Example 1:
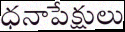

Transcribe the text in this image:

ధనాపేక్షులు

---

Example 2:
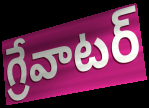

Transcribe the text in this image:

గ్రేవాటర్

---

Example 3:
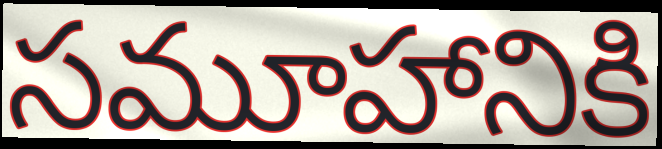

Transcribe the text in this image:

సమూహానికి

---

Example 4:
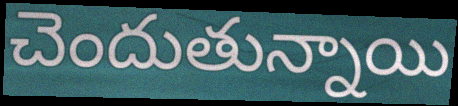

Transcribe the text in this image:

చెందుతున్నాయి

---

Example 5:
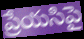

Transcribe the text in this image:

ప్రేయసిపై